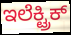
ಇಲೆಕ್ಟ್ರಿಕ್